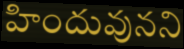
హిందువునని